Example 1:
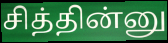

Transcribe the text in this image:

சித்தின்னு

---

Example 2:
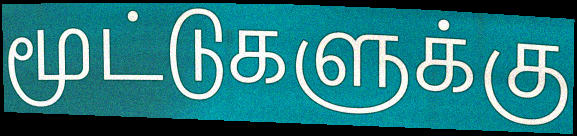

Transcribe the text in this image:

மூட்டுகளுக்கு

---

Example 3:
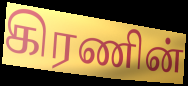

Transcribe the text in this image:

கிரணின்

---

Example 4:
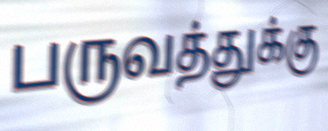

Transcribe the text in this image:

பருவத்துக்கு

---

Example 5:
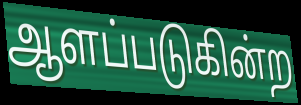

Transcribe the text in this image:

ஆளப்படுகின்ற